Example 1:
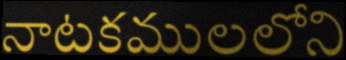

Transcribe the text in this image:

నాటకములలోని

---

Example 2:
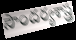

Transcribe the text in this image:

సౌందర్యశాస్త్ర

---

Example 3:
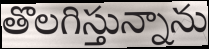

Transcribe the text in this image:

తొలగిస్తున్నాను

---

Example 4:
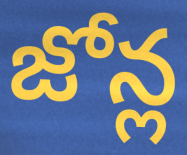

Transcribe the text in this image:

జోన్ల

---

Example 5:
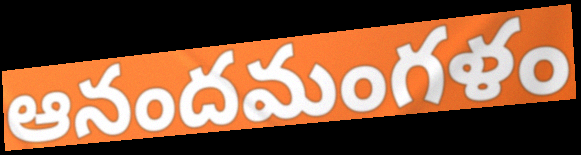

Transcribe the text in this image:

ఆనందమంగళం